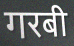
गरबी